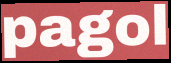
pagol